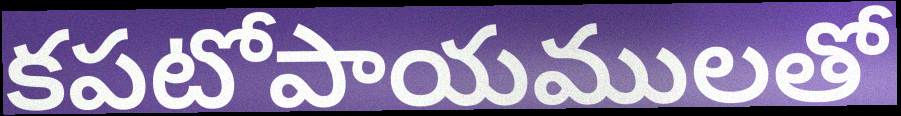
కపటోపాయములతో